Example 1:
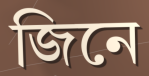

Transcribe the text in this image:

জিনে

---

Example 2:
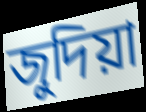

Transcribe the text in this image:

জুদিয়া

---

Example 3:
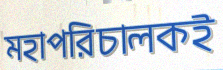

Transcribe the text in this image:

মহাপরিচালকই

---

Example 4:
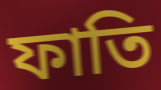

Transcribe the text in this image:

ফাতি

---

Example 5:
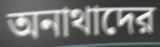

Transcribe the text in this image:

অনাথাদের